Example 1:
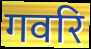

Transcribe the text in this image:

गवरि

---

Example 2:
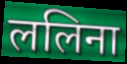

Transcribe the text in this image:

ललिना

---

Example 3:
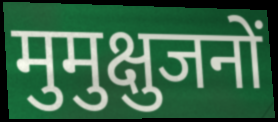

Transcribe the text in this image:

मुमुक्षुजनों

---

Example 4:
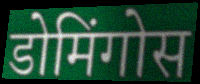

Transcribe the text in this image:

डोमिंगोस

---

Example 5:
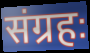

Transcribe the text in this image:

संग्रहः